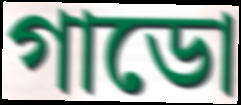
গাডো